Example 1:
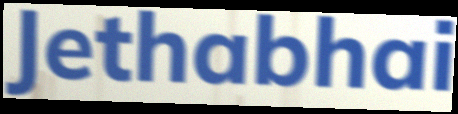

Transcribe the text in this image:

Jethabhai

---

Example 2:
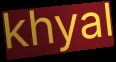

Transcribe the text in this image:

khyal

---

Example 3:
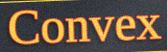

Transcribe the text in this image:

Convex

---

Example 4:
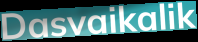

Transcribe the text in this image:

Dasvaikalik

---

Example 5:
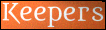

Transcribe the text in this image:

Keepers